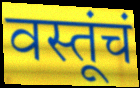
वस्तूंचं